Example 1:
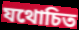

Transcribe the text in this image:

যথোচিত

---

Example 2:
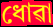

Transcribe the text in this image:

ধোৱা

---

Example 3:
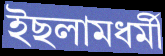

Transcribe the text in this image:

ইছলামধৰ্মী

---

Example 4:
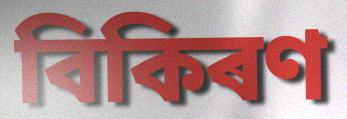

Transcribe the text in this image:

বিকিৰণ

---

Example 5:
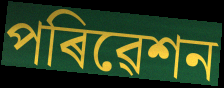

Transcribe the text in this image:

পৰিৱেশন